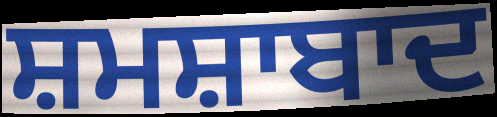
ਸ਼ਮਸ਼ਾਬਾਦ